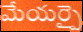
మేయర్పై